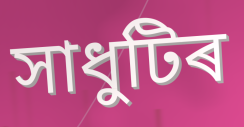
সাধুটিৰ